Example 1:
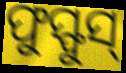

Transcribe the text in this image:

ଫୁସ୍ଫୁସ୍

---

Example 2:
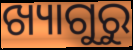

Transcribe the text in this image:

ଖ୍ୟାଗୁରୁ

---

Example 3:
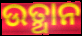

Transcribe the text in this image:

ଉତ୍ଥାନ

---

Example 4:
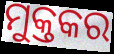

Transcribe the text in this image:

ମୁକ୍ତକର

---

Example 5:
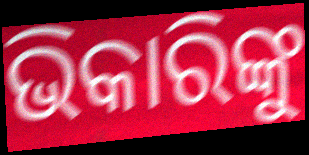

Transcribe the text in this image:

ଭିକାରିଙ୍କୁ